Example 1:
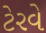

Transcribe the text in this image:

ટેરવે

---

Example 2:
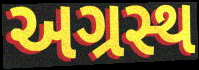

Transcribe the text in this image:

અગ્રસ્થ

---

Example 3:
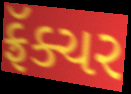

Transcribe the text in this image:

ફ્રૅક્ચર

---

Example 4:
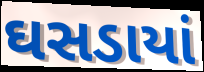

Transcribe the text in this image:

ઘસડાયાં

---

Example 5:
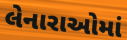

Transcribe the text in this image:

લેનારાઓમાં